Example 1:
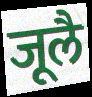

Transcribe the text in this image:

जूलै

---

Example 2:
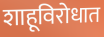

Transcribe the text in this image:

शाहूविरोधात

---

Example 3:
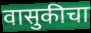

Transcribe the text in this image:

वासुकीचा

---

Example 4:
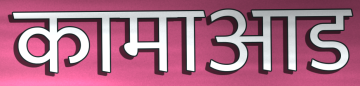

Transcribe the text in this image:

कामाआड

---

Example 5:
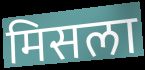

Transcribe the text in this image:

मिसला